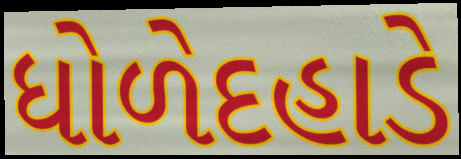
ધોળેદહાડે